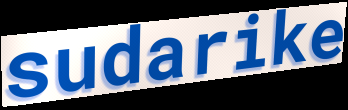
sudarike